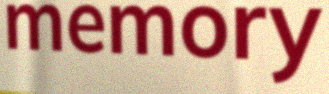
memory